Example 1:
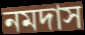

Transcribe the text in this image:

নমদাস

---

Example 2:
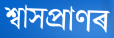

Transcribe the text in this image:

শ্বাসপ্ৰাণৰ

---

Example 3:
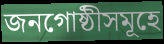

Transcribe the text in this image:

জনগোষ্ঠীসমূহে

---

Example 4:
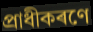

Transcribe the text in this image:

প্ৰাধীকৰণে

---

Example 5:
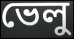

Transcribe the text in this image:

ভেলু